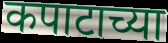
कपाटाच्या